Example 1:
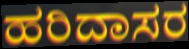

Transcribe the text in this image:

ಹರಿದಾಸರ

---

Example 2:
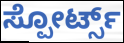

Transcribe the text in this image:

ಸ್ಪೋರ್ಟ್ಸ್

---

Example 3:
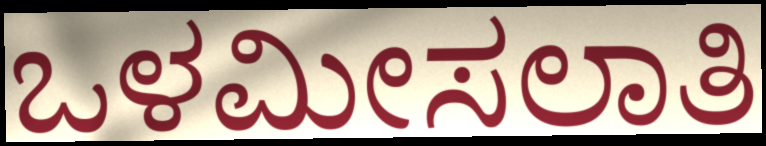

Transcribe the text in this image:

ಒಳಮೀಸಲಾತಿ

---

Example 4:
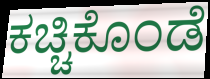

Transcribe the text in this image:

ಕಚ್ಚಿಕೊಂಡೆ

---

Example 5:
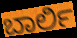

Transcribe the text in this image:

ಬಾರ್ಲಿ